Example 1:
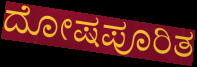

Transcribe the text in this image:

ದೋಷಪೂರಿತ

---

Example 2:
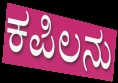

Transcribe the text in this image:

ಕಪಿಲನು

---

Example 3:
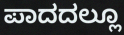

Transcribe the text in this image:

ಪಾದದಲ್ಲೂ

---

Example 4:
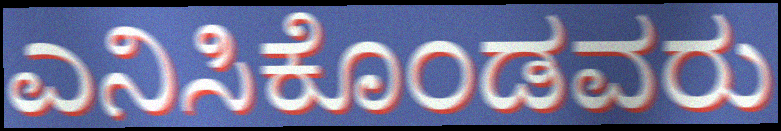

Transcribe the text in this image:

ಎನಿಸಿಕೊಂಡವರು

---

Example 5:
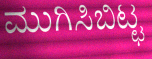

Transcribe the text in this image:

ಮುಗಿಸಿಬಿಟ್ಟ